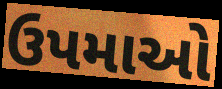
ઉપમાઓ